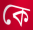
কে